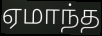
ஏமாந்த